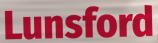
Lunsford